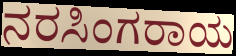
ನರಸಿಂಗರಾಯ